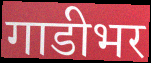
गाडीभर